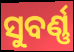
ସୁବର୍ଣ୍ଣ